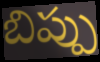
బిప్పు